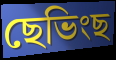
ছেভিংছ